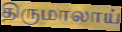
திருமாலாய்